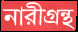
নারীগ্রন্থ